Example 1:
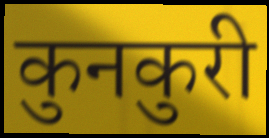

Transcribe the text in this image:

कुनकुरी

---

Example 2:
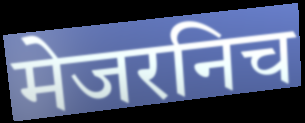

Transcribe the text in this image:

मेजरनिच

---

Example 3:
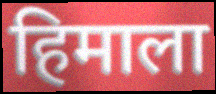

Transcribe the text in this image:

हिमाला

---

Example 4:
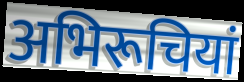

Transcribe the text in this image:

अभिरूचियां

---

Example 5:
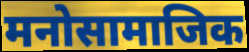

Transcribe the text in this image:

मनोसामाजिक